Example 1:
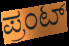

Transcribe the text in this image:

ಪ್ರಂಟ್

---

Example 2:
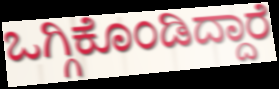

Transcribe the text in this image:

ಒಗ್ಗಿಕೊಂಡಿದ್ದಾರೆ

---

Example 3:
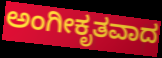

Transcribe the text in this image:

ಅಂಗೀಕೃತವಾದ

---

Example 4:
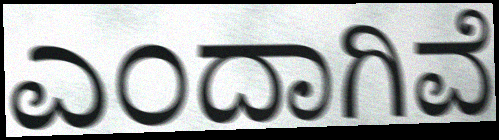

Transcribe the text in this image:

ಎಂದಾಗಿವೆ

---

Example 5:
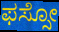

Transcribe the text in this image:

ಫಸ್ಸೋ